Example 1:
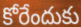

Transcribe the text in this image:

కోరేందుకు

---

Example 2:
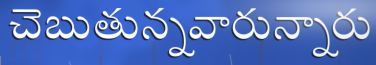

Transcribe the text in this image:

చెబుతున్నవారున్నారు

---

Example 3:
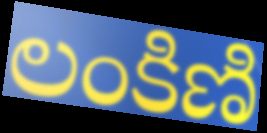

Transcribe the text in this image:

లంకిణి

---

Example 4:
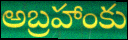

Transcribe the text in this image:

అబ్రహాంకు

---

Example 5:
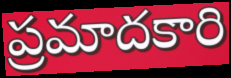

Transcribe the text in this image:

ప్రమాదకారి